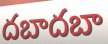
దబాదబా